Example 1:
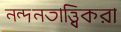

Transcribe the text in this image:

নন্দনতাত্ত্বিকরা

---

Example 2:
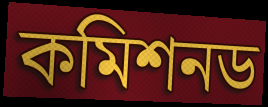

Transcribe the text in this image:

কমিশনড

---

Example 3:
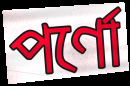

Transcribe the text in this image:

পর্ণো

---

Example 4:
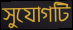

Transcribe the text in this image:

সুযোগটি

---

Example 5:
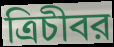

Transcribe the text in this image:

ত্রিচীবর